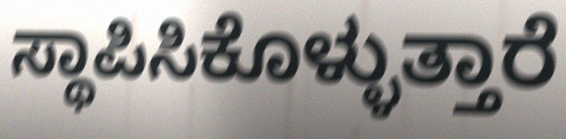
ಸ್ಥಾಪಿಸಿಕೊಳ್ಳುತ್ತಾರೆ